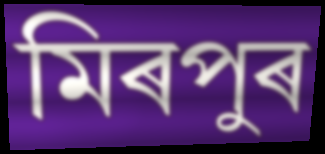
মিৰপুৰ